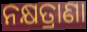
ନକ୍ଷତ୍ରାଣା